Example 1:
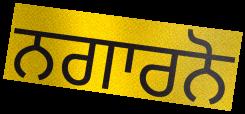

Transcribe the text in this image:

ਨਗਾਰਨੋ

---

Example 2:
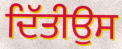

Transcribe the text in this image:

ਦਿੱਤੀਉਸ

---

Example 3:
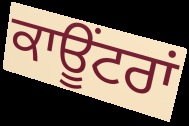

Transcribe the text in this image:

ਕਾਊਂਟਰਾਂ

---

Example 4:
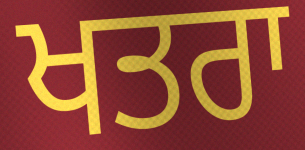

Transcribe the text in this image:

ਖਤਰਾ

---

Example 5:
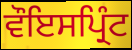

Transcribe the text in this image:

ਵੌਇਸਪ੍ਰਿੰਟ